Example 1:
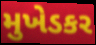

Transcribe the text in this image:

મુખેડકર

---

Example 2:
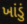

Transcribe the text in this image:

ખાંડું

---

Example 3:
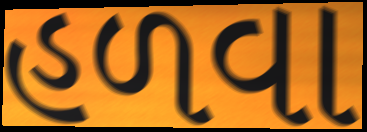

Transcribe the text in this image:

હળવા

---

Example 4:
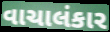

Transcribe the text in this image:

વાચાલંકાર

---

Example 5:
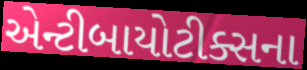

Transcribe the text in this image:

એન્ટીબાયોટીક્સના